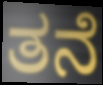
ತನೆ